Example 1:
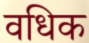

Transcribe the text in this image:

वधिक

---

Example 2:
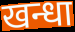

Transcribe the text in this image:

खन्धा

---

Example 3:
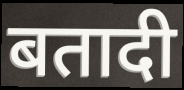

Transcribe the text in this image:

बतादी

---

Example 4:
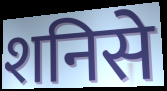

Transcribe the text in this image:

शनिसे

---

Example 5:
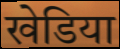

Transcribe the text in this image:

खेडिया